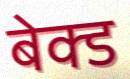
बेक्ड